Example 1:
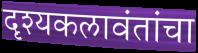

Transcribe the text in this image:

दृश्यकलावंतांचा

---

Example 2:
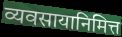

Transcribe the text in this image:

व्यवसायानिमित्त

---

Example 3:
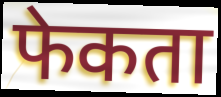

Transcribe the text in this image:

फेकता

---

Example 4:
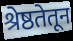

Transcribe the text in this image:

श्रेष्ठतेतून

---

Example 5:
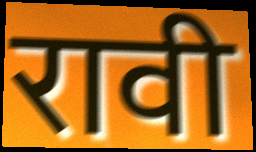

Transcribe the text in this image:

रावी